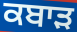
ਕਬਾਡ਼